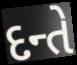
દન્તે